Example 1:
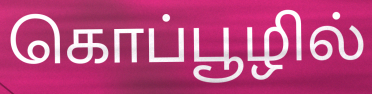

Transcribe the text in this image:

கொப்பூழில்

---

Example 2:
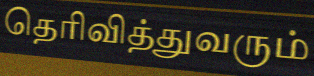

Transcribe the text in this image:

தெரிவித்துவரும்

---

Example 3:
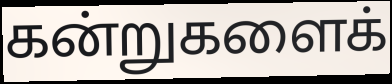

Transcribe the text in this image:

கன்றுகளைக்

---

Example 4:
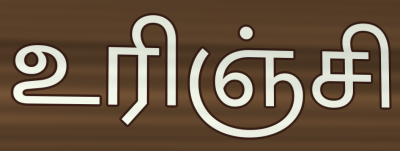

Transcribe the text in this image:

உரிஞ்சி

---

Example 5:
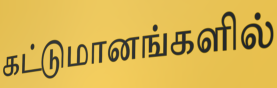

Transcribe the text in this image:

கட்டுமானங்களில்